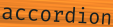
accordion